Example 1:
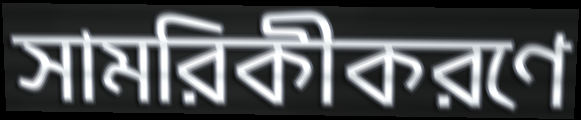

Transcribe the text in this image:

সামরিকীকরণে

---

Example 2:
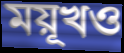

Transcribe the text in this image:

ময়ূখও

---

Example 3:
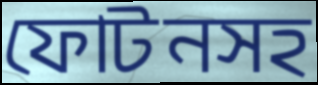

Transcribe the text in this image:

ফোটনসহ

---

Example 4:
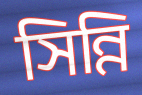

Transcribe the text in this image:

সিন্নি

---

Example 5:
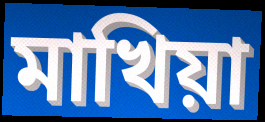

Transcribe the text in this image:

মাখিয়া